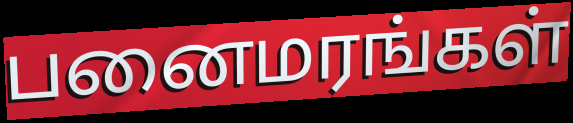
பனைமரங்கள்